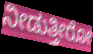
ನೀಡುತ್ತೀರೋ